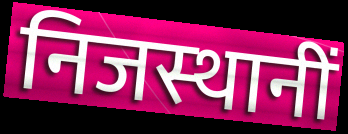
निजस्थानीं